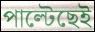
পাল্টেছেই